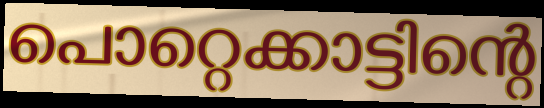
പൊറ്റെക്കാട്ടിന്റെ